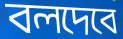
বলদেবে